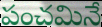
పంచమినే